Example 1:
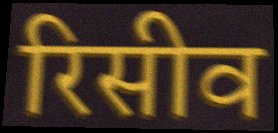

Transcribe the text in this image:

रिसीव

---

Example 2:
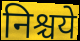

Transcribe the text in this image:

निश्चये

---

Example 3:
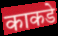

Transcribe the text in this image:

काकडे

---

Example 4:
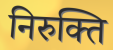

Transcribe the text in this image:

निरुक्ति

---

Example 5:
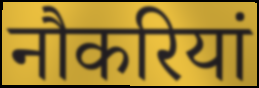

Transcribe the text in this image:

नौकरियां